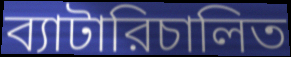
ব্যাটারিচালিত